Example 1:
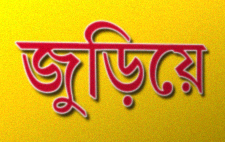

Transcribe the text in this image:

জুড়িয়ে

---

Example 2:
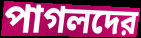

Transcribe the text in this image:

পাগলদের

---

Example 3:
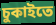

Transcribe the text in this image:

চুকাইতে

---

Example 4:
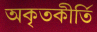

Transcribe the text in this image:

অকৃতকীর্তি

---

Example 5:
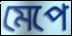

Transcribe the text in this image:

মেপে